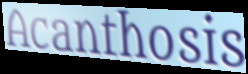
Acanthosis